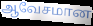
ஆவேசமான